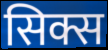
सिक्स